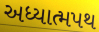
અધ્યાત્મપથ